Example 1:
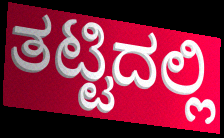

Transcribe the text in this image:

ತಟ್ಟಿದಲ್ಲಿ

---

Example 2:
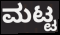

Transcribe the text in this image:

ಮಟ್ಟ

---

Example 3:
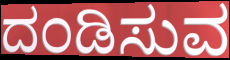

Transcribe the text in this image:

ದಂಡಿಸುವ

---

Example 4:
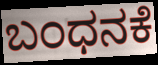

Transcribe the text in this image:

ಬಂಧನಕೆ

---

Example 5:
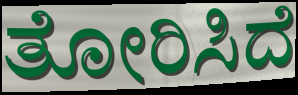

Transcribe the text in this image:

ತೋರಿಸಿದೆ